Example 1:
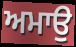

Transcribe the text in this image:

ਅਮਾਉ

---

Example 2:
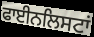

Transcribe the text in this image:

ਫਾਈਨਲਿਸਟਾਂ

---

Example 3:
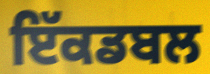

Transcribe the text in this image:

ਇੱਕਡਬਲ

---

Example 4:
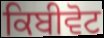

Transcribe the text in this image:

ਕਿਬੀਵੋਟ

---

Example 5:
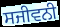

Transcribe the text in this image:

ਸਜੀਵਨੀ